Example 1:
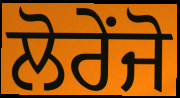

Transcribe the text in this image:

ਲੋਰੇਂਜੋ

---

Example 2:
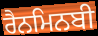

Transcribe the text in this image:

ਰੈਨਮਿਨਬੀ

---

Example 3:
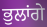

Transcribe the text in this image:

ਭੁਲਾਂਗੇ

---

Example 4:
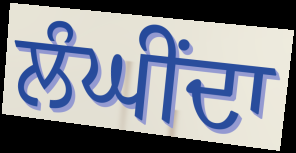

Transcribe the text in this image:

ਲੰਘੀਂਦਾ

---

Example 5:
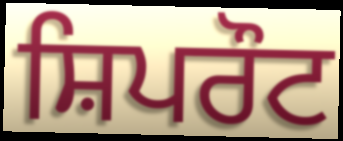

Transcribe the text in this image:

ਸ਼ਿਪਰੌਟ